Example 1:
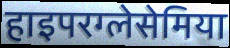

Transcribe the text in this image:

हाइपरग्लेसेमिया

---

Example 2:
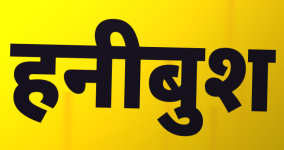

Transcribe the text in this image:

हनीबुश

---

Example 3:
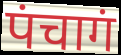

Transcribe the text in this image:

पंचागं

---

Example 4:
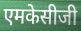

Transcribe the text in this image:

एमकेसीजी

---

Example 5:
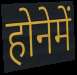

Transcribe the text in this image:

होनेमें